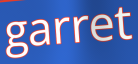
garret